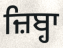
ਜ਼ਿਬ੍ਹਾ